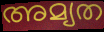
അമ്യത